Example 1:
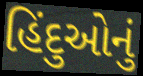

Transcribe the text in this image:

હિંદુઓનું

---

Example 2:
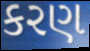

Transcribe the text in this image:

કરણ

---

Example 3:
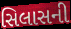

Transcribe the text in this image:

સિલાસની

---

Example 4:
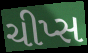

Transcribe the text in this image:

ચીપ્સ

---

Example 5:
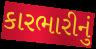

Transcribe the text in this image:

કારભારીનું